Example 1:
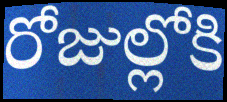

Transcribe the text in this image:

రోజుల్లోకి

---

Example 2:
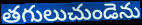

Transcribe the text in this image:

తగులుచుండెను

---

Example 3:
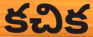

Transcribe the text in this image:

కచిక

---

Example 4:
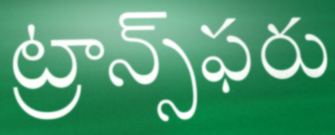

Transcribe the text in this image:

ట్రాన్స్‌ఫరు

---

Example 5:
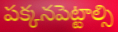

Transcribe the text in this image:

పక్కనపెట్టాల్సి